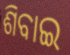
ଶିବାଇ